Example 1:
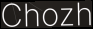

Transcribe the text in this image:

Chozh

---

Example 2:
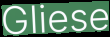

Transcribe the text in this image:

Gliese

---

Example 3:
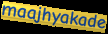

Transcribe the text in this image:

maajhyakade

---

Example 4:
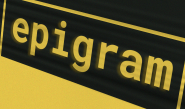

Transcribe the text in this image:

epigram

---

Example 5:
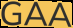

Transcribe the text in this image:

GAA